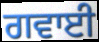
ਗਵਾਈ